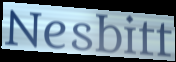
Nesbitt